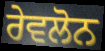
ਰੇਵਲੋਨ